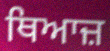
ਥਿਆਜ਼